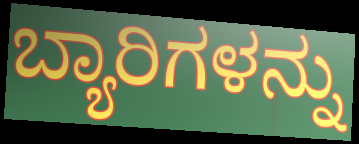
ಬ್ಯಾರಿಗಳನ್ನು